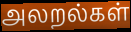
அலறல்கள்